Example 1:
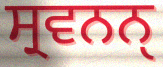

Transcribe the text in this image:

ਸ੍ਰਵਨਨੑ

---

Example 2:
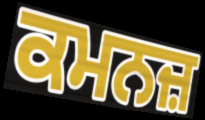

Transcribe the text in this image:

ਕਮਨਜ਼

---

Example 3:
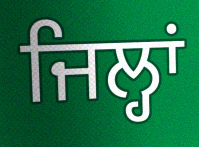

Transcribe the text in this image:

ਜਿਲ੍ਹਾਂ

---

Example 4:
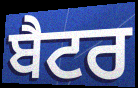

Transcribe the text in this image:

ਬੈਟਰ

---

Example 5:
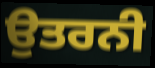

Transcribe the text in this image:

ਉਤਰਨੀ